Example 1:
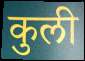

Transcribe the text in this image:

कुली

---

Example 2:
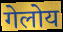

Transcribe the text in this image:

गेलोय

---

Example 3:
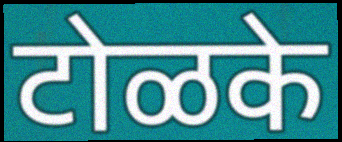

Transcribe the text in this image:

टोळके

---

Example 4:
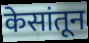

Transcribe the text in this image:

केसांतून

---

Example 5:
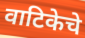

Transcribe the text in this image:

वाटिकेचे